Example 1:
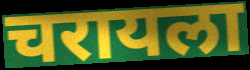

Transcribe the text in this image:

चरायला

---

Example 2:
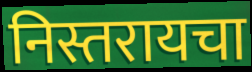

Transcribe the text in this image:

निस्तरायचा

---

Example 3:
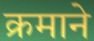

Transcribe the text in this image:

क्रमाने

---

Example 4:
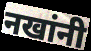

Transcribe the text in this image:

नखांनी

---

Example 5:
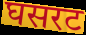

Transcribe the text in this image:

घसरट